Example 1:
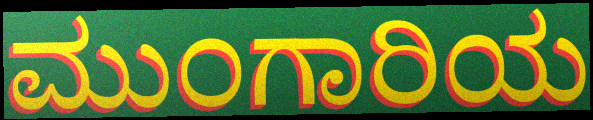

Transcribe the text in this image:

ಮುಂಗಾರಿಯ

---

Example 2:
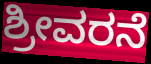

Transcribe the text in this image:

ಶ್ರೀವರನೆ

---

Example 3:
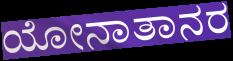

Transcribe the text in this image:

ಯೋನಾತಾನರ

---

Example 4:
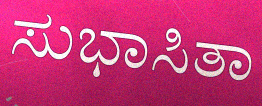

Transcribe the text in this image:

ಸುಭಾಸಿತಾ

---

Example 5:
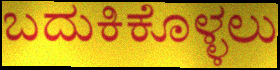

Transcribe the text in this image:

ಬದುಕಿಕೊಳ್ಳಲು